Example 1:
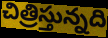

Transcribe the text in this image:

చిత్రిస్తున్నది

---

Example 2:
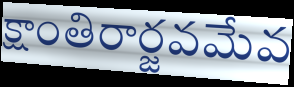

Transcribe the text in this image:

క్షాంతిరార్జవమేవ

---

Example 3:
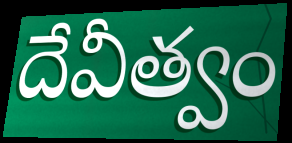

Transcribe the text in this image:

దేవీత్వం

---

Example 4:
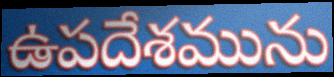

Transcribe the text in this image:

ఉపదేశమును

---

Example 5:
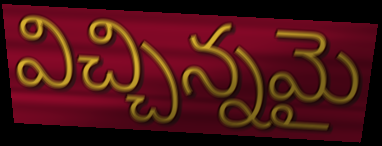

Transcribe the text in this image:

విచ్చిన్నమై